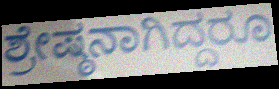
ಶ್ರೇಷ್ಠನಾಗಿದ್ದರೂ